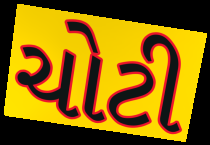
ચોટી